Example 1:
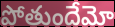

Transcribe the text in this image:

పోతుందేమో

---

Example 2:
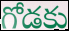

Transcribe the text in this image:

గోడకు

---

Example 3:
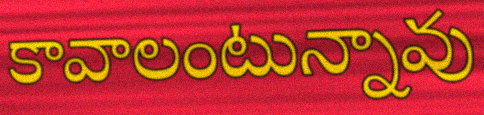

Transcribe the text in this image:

కావాలంటున్నావు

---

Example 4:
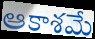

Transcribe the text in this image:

ఆకాశమే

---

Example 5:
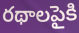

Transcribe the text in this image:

రథాలపైకి